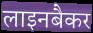
लाइनबैकर